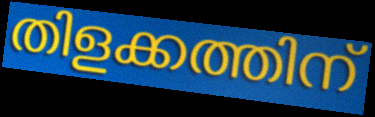
തിളക്കത്തിന്